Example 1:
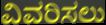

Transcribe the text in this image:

ವಿವರಿಸಲು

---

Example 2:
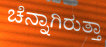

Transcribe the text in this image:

ಚೆನ್ನಾಗಿರುತ್ತಾ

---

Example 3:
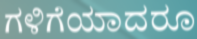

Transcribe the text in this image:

ಗಳಿಗೆಯಾದರೂ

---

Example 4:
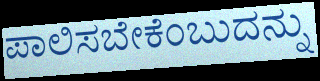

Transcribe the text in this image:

ಪಾಲಿಸಬೇಕೆಂಬುದನ್ನು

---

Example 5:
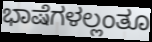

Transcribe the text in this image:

ಭಾಷೆಗಳಲ್ಲಂತೂ